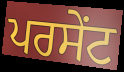
ਪਰਸੇੰਟ